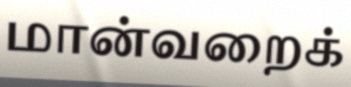
மான்வறைக்